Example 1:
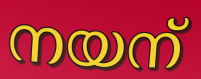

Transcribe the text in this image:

നയന്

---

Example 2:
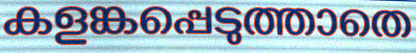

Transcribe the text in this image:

കളങ്കപ്പെടുത്താതെ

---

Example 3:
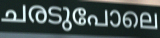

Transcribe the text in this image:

ചരടുപോലെ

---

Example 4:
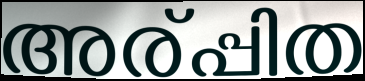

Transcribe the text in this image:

അര്പ്പിത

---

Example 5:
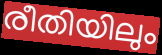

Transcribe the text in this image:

രീതിയിലും